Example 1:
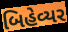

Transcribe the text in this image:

બિહેવ્યર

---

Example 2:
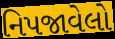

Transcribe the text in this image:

નિપજાવેલો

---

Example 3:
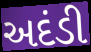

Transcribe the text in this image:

અદંડી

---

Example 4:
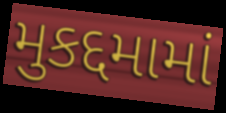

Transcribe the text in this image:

મુકદ્દમામાં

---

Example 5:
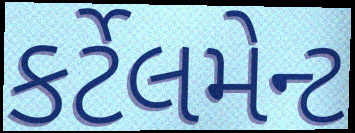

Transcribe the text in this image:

કર્ટેલમેન્ટ